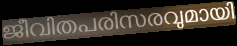
ജീവിതപരിസരവുമായി